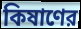
কিষাণের